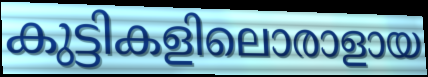
കുട്ടികളിലൊരാളായ